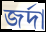
জর্দা